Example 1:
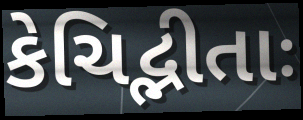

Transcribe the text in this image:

કેચિદ્ભીતાઃ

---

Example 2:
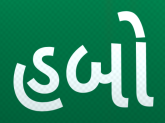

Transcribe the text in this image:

હબો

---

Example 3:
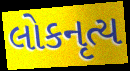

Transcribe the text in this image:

લોકનૃત્ય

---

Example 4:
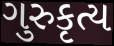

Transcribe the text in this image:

ગુરુકૃત્ય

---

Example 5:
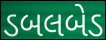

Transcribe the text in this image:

ડબલબેડ